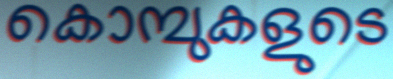
കൊമ്പുകളുടെ